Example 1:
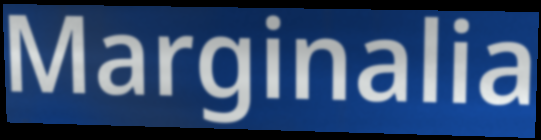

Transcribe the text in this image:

Marginalia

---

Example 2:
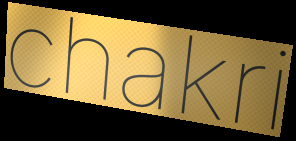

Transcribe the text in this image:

chakri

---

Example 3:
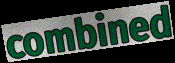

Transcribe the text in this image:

combined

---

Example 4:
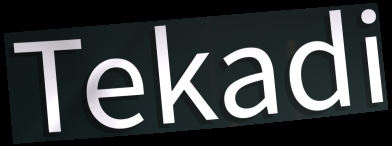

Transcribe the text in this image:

Tekadi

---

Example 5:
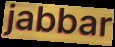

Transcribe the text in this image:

jabbar